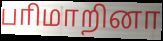
பரிமாறினா